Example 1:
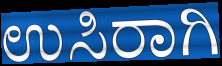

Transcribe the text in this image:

ಉಸಿರಾಗಿ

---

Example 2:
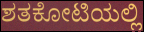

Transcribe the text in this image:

ಶತಕೋಟಿಯಲ್ಲಿ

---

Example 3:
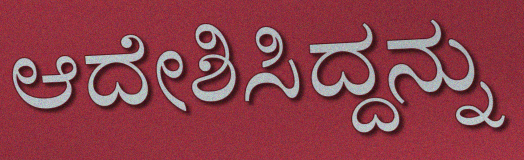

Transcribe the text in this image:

ಆದೇಶಿಸಿದ್ದನ್ನು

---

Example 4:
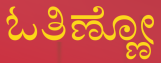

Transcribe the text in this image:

ಓತಿಣ್ಣೋ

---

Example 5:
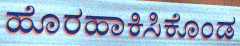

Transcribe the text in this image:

ಹೊರಹಾಕಿಸಿಕೊಂಡ